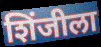
शिंजीला